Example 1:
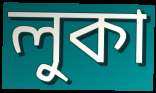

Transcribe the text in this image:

লুকা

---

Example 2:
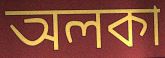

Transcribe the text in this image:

অলকা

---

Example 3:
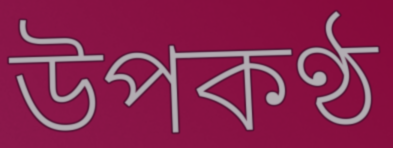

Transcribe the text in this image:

উপকণ্ঠ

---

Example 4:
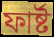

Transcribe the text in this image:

ফাৰ্ষ্ট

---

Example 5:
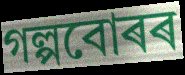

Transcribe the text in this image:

গল্পবোৰৰ